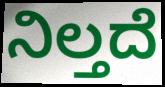
ನಿಲ್ತದೆ